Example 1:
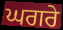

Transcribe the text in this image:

ਘਗਰੇ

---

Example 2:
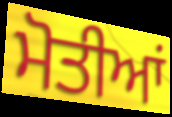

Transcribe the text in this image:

ਮੋਤੀਆਂ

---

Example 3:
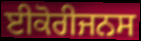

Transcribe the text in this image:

ਈਕੋਰੀਜਨਸ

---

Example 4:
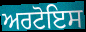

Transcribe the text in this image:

ਅਰਟੋਇਸ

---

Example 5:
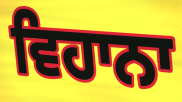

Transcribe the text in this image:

ਵਿਹਾਨਾ